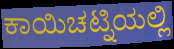
ಕಾಯಿಚಟ್ನಿಯಲ್ಲಿ